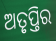
ଅତୃପ୍ତିର